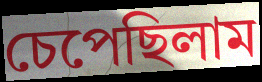
চেপেছিলাম